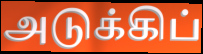
அடுக்கிப்